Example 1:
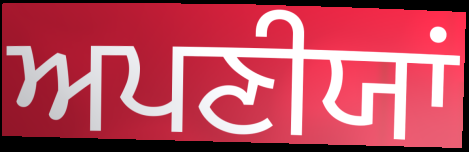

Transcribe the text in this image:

ਅਪਣੀਯਾਂ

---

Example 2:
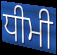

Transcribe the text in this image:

ਧੀਮੀ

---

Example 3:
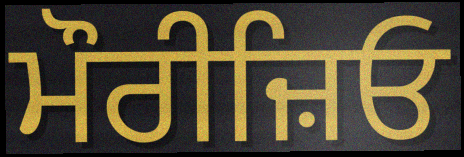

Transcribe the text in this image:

ਮੌਰੀਜ਼ਿਓ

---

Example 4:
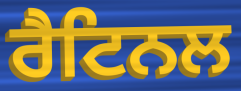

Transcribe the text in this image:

ਰੈਟਿਨਲ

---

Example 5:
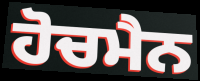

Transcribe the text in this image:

ਹੋਚਮੈਨ